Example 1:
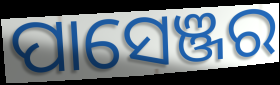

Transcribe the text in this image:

ପାସେଞ୍ଜର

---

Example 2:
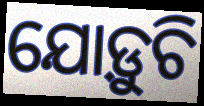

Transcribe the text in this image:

ଯୋଡ଼ୁଚି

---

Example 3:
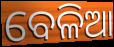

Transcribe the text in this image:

ବେଳିଆ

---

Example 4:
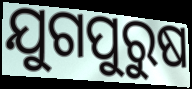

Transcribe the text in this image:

ଯୁଗପୁରୁଷ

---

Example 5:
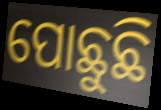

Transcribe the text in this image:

ପୋଛୁଛି